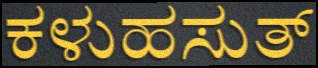
ಕಳುಹಸುತ್